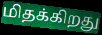
மிதக்கிறது